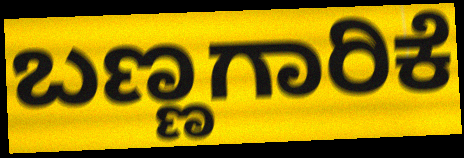
ಬಣ್ಣಗಾರಿಕೆ